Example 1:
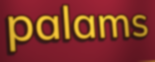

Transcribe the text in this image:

palams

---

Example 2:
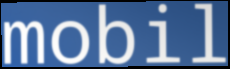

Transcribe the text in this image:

mobil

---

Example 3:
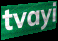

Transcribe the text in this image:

tvayi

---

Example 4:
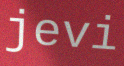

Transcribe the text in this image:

jevi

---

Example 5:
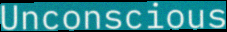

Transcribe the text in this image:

Unconscious